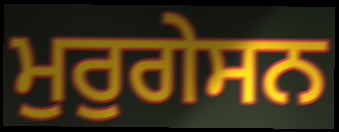
ਮੁਰੁਗੇਸਨ